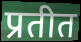
प्रतीत